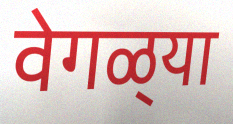
वेगळ्‌या